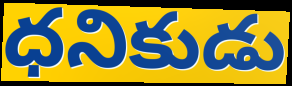
ధనికుడు